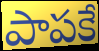
పాపకే